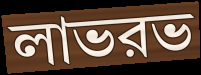
লাভরভ